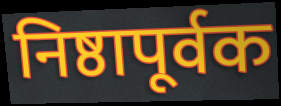
निष्ठापूर्वक